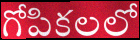
గోపికలలో